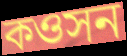
কওসন